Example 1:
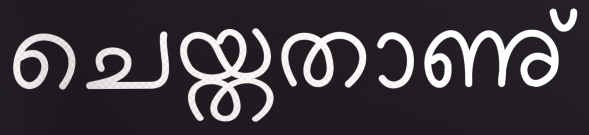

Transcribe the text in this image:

ചെയ്തതാണു്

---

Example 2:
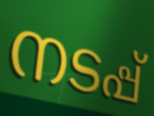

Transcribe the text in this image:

നടപ്പ്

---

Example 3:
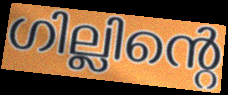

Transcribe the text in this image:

ഗില്ലിന്റെ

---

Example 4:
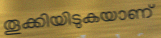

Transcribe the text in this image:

തൂക്കിയിടുകയാണ്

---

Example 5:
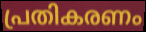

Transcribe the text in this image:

പ്രതികരണം